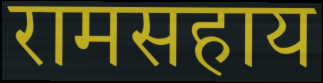
रामसहाय